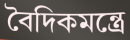
বৈদিকমন্ত্রে